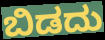
ಬಿಡದು